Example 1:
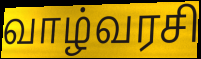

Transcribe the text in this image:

வாழ்வரசி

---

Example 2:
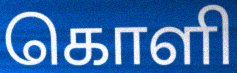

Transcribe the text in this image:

கொளி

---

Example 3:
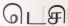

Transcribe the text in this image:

டெசி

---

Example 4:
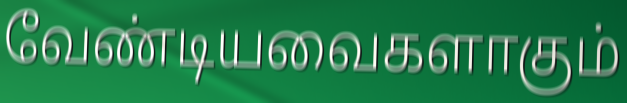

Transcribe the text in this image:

வேண்டியவைகளாகும்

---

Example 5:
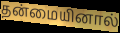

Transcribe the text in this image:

தன்மையினால்